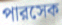
পারসেক